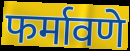
फर्मावणे